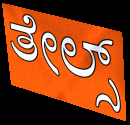
ತೇಲ್ಸ್